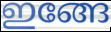
ഇങ്ങേ